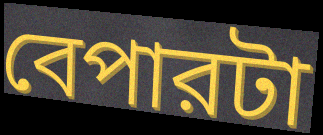
বেপারটা